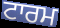
ਟਾਰਮ